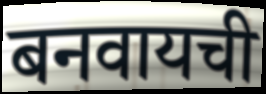
बनवायची